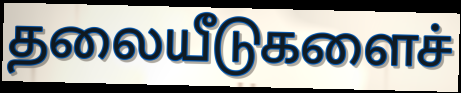
தலையீடுகளைச்